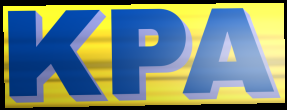
KPA